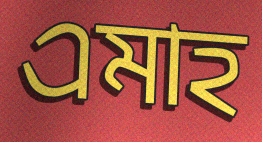
এমাহ